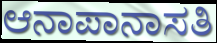
ಆನಾಪಾನಾಸತಿ